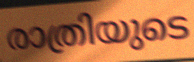
രാത്രിയുടെ